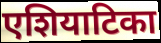
एशियाटिका